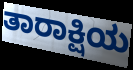
ತಾರಾಕ್ಷಿಯ